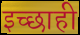
इच्छाही